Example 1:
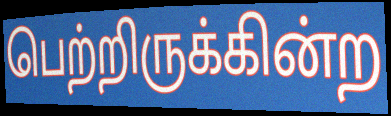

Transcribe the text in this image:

பெற்றிருக்கின்ற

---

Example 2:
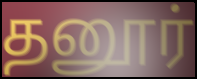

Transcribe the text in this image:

தனூர்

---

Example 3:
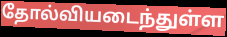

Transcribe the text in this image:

தோல்வியடைந்துள்ள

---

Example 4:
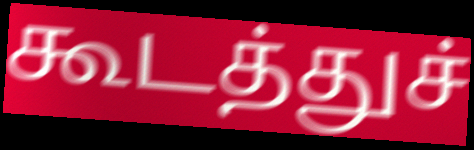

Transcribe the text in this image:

கூடத்துச்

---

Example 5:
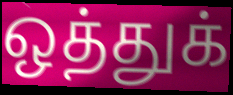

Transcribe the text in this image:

ஒத்துக்